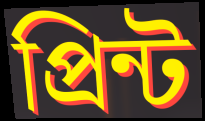
প্রিন্ট